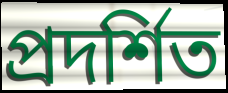
প্ৰদৰ্শিত